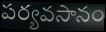
పర్యవసానం